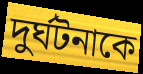
দুর্ঘটনাকে